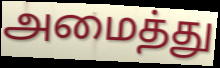
அமைத்து